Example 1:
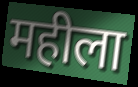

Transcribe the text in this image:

महीला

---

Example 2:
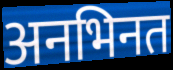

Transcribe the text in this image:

अनभिनत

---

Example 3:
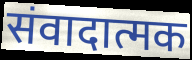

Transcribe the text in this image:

संवादात्मक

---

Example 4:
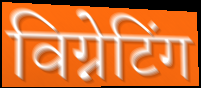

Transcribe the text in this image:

विग्नेटिंग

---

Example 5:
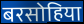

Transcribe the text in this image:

बरसोहिया